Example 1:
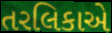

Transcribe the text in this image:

તરલિકાએ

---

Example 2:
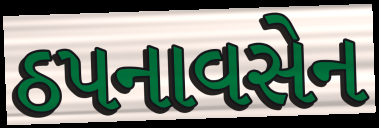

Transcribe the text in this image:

ઠપનાવસેન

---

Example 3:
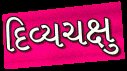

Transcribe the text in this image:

દિવ્યચક્ષુ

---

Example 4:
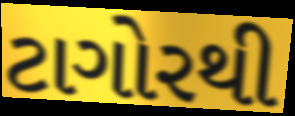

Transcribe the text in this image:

ટાગોરથી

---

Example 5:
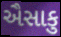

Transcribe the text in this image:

ઐસાકુ